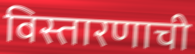
विस्तारणाची